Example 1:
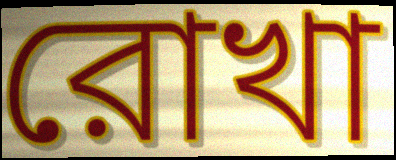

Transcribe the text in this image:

রোখা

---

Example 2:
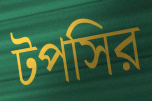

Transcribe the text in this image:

টপসির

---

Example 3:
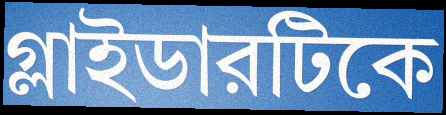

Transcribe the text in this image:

গ্লাইডারটিকে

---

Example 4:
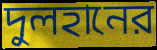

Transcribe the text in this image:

দুলহানের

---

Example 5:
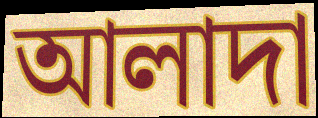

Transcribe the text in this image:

আলাদা